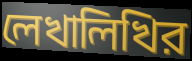
লেখালিখির